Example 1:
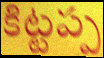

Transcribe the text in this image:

కిట్టప్ప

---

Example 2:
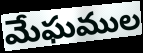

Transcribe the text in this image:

మేఘముల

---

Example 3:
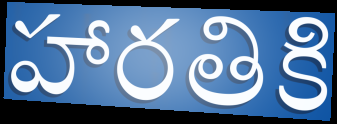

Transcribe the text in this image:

హారతికి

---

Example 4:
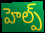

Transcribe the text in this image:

హెల్ప్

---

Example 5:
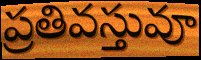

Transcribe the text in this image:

ప్రతివస్తువూ